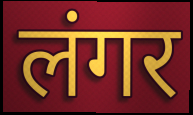
लंगर